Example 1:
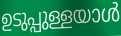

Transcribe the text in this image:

ഉടുപ്പുള്ളയാൾ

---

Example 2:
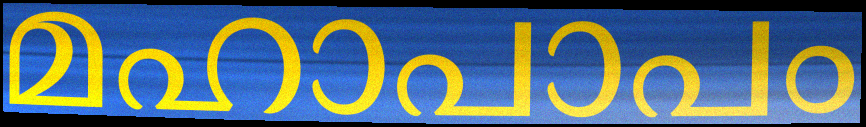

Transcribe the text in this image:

മഹാപാപം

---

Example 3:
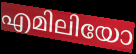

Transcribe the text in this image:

എമിലിയോ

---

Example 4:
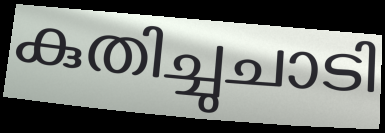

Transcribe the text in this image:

കുതിച്ചുചാടി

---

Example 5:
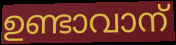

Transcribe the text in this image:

ഉണ്ടാവാന്